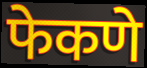
फेकणे